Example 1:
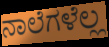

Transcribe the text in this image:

ನಾಲೆಗಳೆಲ್ಲ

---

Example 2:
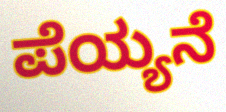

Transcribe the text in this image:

ಪೆಯ್ಯನೆ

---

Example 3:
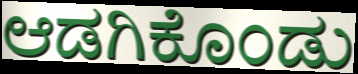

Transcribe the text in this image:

ಆಡಗಿಕೊಂಡು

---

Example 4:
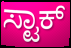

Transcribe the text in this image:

ಸ್ಟಾಕ್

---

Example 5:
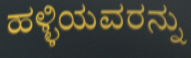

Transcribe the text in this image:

ಹಳ್ಳಿಯವರನ್ನು